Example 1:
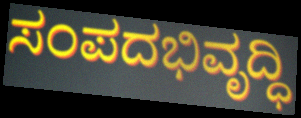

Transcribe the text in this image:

ಸಂಪದಭಿವೃದ್ಧಿ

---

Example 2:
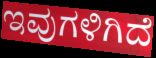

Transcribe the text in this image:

ಇವುಗಳಿಗಿದೆ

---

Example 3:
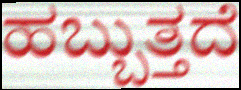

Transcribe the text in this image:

ಹಬ್ಬುತ್ತದೆ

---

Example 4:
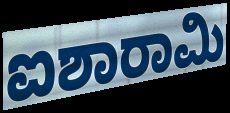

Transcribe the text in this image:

ಐಶಾರಾಮಿ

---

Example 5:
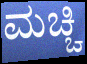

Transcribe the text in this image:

ಮಚ್ಚಿ